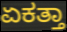
ಏಕತ್ತಾ